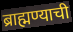
ब्राह्मण्याची